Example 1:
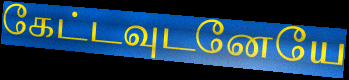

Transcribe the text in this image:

கேட்டவுடனேயே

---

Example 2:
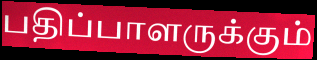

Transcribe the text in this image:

பதிப்பாளருக்கும்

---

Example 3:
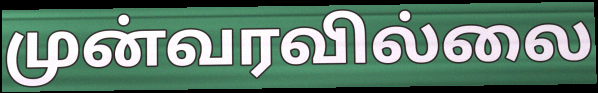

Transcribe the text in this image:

முன்வரவில்லை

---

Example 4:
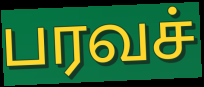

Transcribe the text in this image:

பரவச்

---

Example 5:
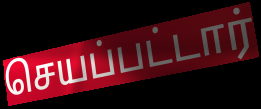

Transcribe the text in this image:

செயப்பட்டார்